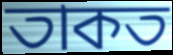
তাকত